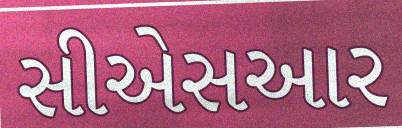
સીએસઆર